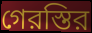
গেরস্তির